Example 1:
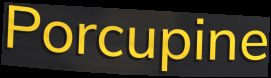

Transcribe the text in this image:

Porcupine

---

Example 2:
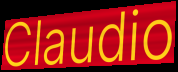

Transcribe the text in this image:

Claudio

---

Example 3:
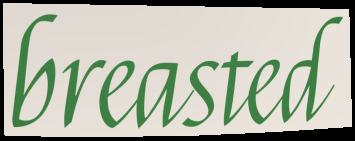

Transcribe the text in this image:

breasted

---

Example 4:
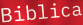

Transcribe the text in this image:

Biblica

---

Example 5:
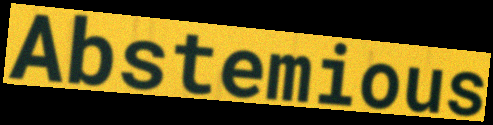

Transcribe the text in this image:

Abstemious